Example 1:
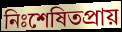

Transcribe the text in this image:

নিঃশেষিতপ্রায়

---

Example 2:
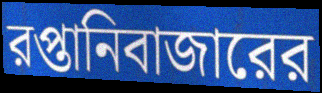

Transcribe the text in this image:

রপ্তানিবাজারের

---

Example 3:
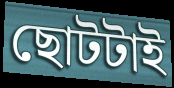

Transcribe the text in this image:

ছোটটাই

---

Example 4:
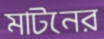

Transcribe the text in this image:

মাটনের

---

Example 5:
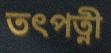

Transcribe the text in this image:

তৎপত্নী